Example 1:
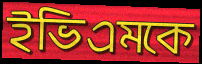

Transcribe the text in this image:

ইভিএমকে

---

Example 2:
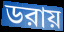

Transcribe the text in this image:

ডরায়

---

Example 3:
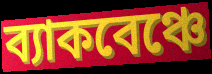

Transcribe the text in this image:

ব্যাকবেঞ্চে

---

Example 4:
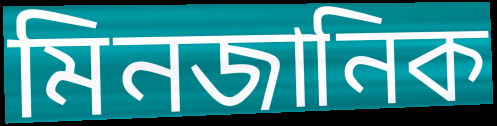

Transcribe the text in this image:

মিনজানিক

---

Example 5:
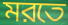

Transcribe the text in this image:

মরতে